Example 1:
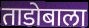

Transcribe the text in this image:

ताडोबाला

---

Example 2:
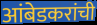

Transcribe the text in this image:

आंबेडकरांची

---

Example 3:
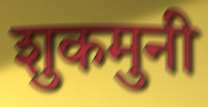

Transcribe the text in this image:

शुकमुनी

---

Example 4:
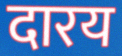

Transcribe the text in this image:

दारय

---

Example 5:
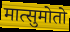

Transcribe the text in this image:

मात्सुमोतो